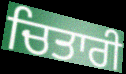
ਚਿਤਾਰੀ